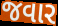
જવાર